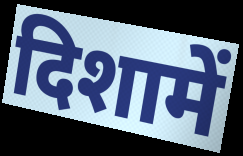
दिशामें